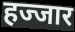
हज्जार